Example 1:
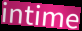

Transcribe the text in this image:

intime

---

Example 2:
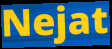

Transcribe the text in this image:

Nejat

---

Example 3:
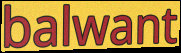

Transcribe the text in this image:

balwant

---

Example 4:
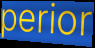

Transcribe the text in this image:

perior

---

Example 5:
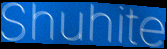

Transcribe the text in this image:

Shuhite